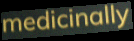
medicinally